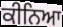
ਕੀਨਿਆ